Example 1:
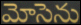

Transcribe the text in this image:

మోసెను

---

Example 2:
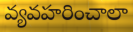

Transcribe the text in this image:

వ్యవహరించాలా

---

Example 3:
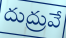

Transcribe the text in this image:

దుద్రువే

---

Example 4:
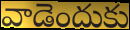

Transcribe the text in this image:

వాడెందుకు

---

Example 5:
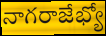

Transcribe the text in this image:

నాగరాజేభ్యో